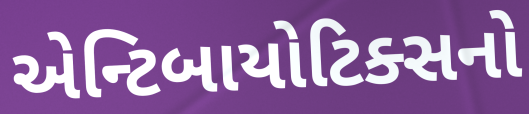
એન્ટિબાયોટિક્સનો